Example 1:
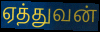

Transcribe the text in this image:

ஏத்துவன்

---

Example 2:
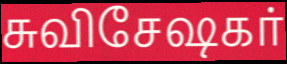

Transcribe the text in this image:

சுவிசேஷகர்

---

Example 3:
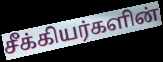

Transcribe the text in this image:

சீக்கியர்களின்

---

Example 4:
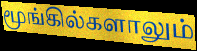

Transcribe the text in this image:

மூங்கில்களாலும்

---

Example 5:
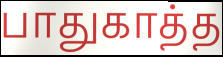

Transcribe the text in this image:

பாதுகாத்த